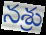
నశ్రు